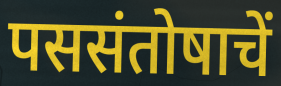
पससंतोषाचें